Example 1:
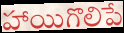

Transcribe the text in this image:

హాయిగొలిపే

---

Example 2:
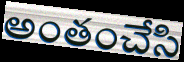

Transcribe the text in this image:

అంతంచేసి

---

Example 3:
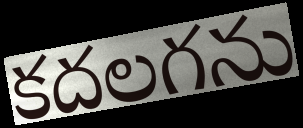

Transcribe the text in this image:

కదలగను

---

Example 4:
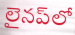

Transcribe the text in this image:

లైనప్‌లో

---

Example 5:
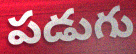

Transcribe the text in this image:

పడుగు